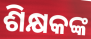
ଶିକ୍ଷକଙ୍କ